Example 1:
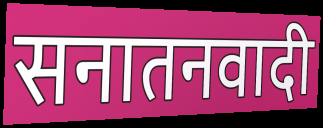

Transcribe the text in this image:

सनातनवादी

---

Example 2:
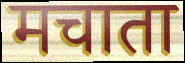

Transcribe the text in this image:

मचाता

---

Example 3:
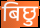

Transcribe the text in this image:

बिछु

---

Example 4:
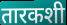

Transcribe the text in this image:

तारकशी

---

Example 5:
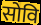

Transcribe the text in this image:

सोवि